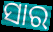
ସାର